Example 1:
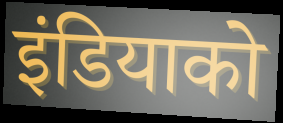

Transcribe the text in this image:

इंडियाको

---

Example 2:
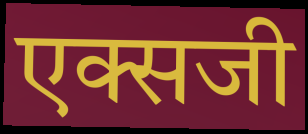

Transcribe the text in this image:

एक्सजी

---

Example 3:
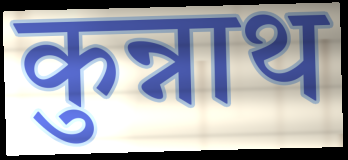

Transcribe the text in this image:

कुन्नाथ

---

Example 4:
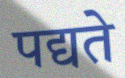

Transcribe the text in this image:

पद्यते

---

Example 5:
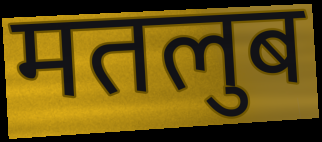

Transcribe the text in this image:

मतलुब